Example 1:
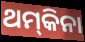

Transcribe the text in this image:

ଥମ୍‍କିନା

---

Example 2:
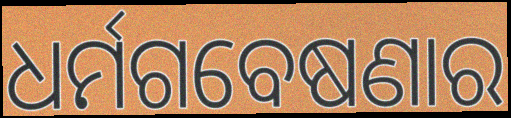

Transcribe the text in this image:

ଧର୍ମଗବେଷଣାର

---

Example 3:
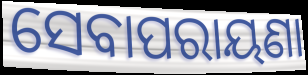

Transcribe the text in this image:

ସେବାପରାୟଣା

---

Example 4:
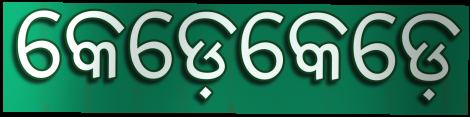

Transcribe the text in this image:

କେଡ଼େକେଡ଼େ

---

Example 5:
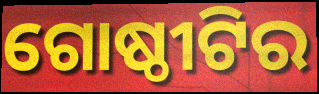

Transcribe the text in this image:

ଗୋଷ୍ଠୀଟିର